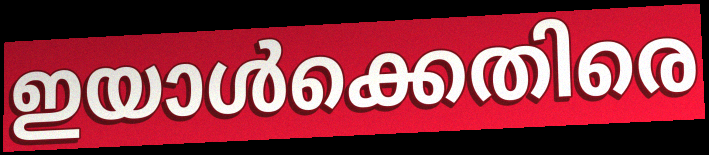
ഇയാൾക്കെതിരെ